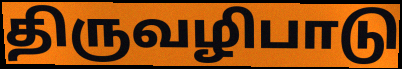
திருவழிபாடு